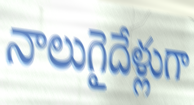
నాలుగైదేళ్లుగా